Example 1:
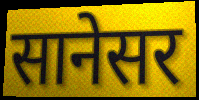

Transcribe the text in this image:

सानेसर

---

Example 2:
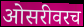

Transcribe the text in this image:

ओसरीवरच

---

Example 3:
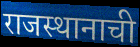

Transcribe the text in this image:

राजस्थानाची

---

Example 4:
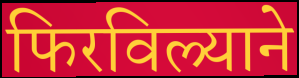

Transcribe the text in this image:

फिरविल्याने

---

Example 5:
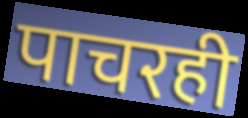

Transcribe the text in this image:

पाचरही